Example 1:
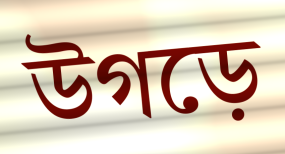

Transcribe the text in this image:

উগড়ে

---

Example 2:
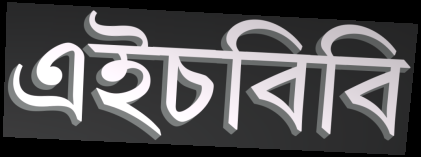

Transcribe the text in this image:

এইচবিবি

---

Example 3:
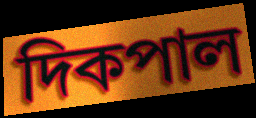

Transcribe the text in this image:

দিকপাল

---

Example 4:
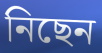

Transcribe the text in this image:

নিছেন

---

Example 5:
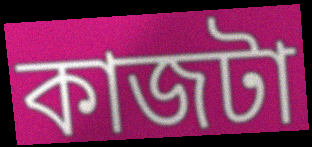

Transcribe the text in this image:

কাজটা